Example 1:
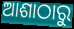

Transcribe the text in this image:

ଆଶାଠାରୁ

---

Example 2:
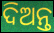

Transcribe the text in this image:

ଦିଅନ୍ତ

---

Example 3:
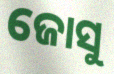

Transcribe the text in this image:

ଜୋସୁ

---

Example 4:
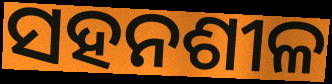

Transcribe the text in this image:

ସହନଶୀଳ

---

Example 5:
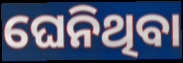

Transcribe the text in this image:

ଘେନିଥିବା